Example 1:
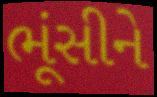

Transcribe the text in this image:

ભૂંસીને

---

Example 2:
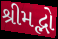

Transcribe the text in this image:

શ્રીમદ્ભો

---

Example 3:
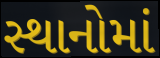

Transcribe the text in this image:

સ્થાનોમાં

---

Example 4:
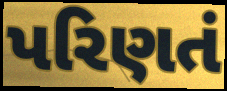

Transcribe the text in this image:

પરિણતં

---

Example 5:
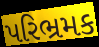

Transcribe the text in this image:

પરિભ્રમક